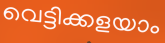
വെട്ടിക്കളയാം